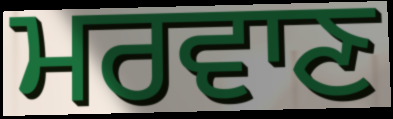
ਮਰਵਾਣ